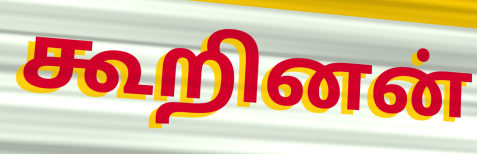
கூறினன்